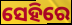
ସେହିରେ